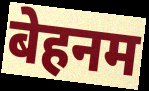
बेहनम